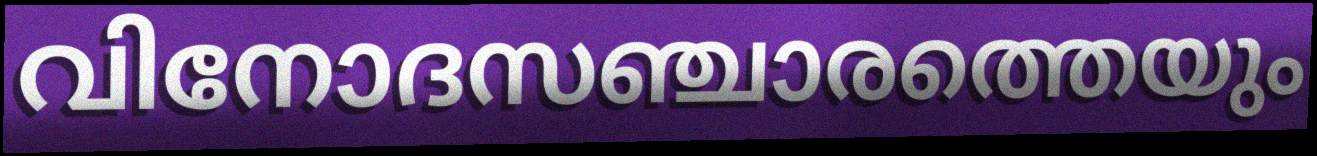
വിനോദസഞ്ചാരത്തെയും